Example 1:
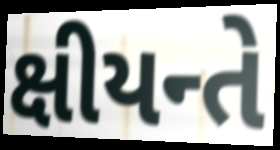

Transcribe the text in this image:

ક્ષીયન્તે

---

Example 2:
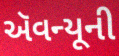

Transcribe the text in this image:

ઍવન્યૂની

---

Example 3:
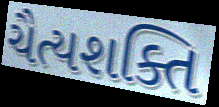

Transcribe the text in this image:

ચૈત્યશક્તિ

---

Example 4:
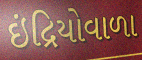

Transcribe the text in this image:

ઇંદ્રિયોવાળા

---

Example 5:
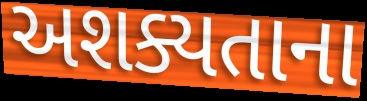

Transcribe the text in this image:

અશક્યતાના